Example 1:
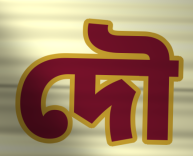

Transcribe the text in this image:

দৌ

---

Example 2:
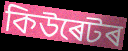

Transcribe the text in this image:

কিউৰেটৰ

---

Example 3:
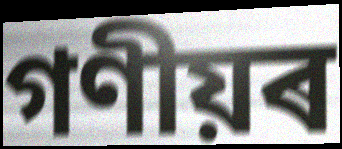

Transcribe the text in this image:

গণীয়ৰ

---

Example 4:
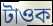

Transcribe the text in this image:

টাওক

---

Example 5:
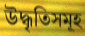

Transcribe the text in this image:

উদ্ধৃতিসমূহ